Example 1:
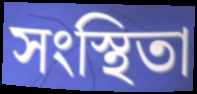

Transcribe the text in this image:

সংস্থিতা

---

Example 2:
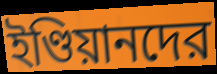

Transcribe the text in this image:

ইণ্ডিয়ানদের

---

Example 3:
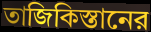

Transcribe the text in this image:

তাজিকিস্তানের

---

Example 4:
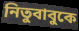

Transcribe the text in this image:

নিতুবাবুকে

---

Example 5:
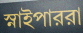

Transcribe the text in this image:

স্নাইপাররা